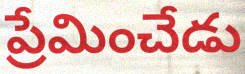
ప్రేమించేడు